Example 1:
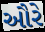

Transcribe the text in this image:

ઔરે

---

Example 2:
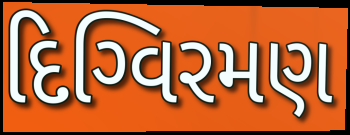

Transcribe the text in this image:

દિગ્વિરમણ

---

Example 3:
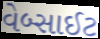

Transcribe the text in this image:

વેબ્સાઈટ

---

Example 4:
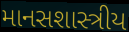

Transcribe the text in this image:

માનસશાસ્ત્રીય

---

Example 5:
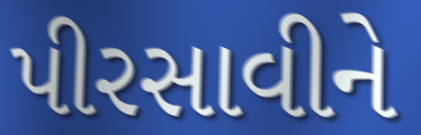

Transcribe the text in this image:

પીરસાવીને